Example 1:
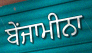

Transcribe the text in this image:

ਬੇਂਜਾਮੀਨਾ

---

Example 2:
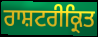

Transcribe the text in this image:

ਰਾਸ਼ਟਰੀਕ੍ਰਿਤ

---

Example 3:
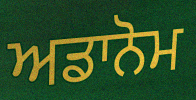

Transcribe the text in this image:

ਅਡਾਨੋਮ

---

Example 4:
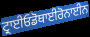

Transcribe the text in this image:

ਟ੍ਰਾਈਓਡੋਥਾਈਰੋਨਾਈਨ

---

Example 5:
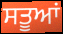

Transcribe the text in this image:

ਸਤੂਆਂ